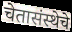
चेतासंस्थेचे